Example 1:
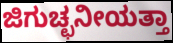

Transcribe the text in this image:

ಜಿಗುಚ್ಛನೀಯತ್ತಾ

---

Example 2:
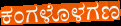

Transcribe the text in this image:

ಕಂಗಳೊಳಗಣ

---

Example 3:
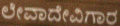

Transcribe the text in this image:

ಲೇವಾದೇವಿಗಾರ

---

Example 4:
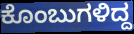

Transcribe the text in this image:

ಕೊಂಬುಗಳಿದ್ದ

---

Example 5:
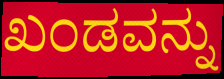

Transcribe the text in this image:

ಖಂಡವನ್ನು